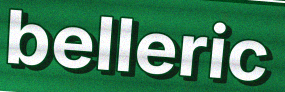
belleric